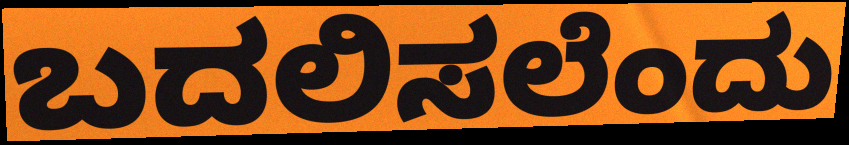
ಬದಲಿಸಲೆಂದು